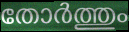
തോർത്തും